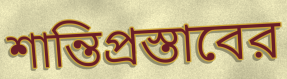
শান্তিপ্রস্তাবের